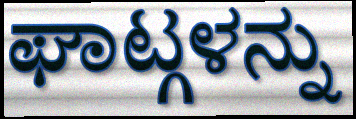
ಘಾಟ್ಗಳನ್ನು